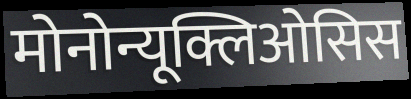
मोनोन्यूक्लिओसिस